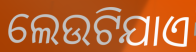
ଲେଉଟିଯାଏ